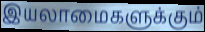
இயலாமைகளுக்கும்